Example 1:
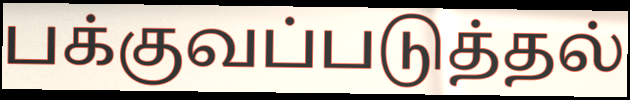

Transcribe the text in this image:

பக்குவப்படுத்தல்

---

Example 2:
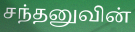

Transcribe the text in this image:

சந்தனுவின்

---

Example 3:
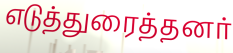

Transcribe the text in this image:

எடுத்துரைத்தனர்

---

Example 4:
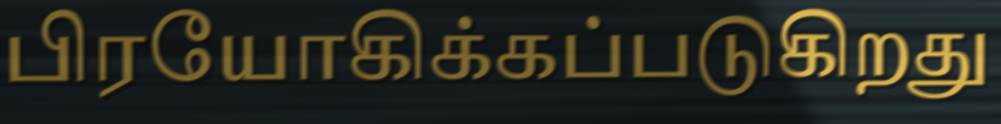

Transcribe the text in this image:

பிரயோகிக்கப்படுகிறது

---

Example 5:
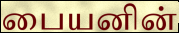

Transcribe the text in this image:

பையனின்